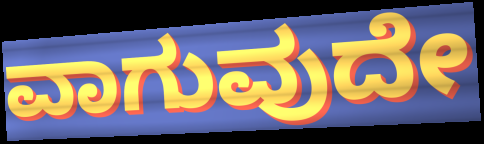
ವಾಗುವುದೇ